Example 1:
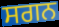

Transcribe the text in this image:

ਸਗਨ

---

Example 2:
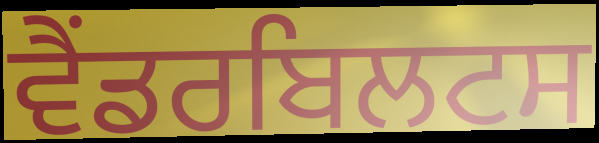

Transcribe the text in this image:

ਵੈਂਡਰਬਿਲਟਸ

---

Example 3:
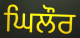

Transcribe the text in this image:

ਘਿਲੌਰ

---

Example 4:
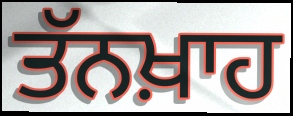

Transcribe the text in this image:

ਤੱਨਖ਼ਾਹ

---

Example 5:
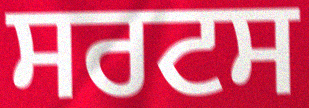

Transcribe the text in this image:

ਸਰਟਸ